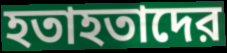
হতাহতাদের